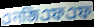
এনজিএফএফ